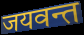
जयवन्त